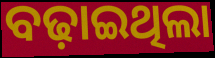
ବଢ଼ାଇଥିଲା